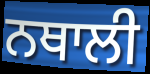
ਨਥਾਲੀ